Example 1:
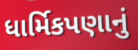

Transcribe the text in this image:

ધાર્મિકપણાનું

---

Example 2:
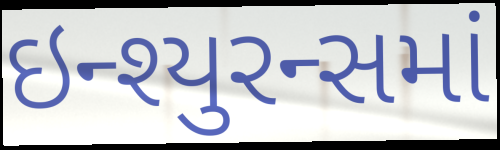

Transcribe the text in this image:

ઇન્શ્યુરન્સમાં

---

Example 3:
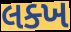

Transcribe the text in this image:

લક્ખ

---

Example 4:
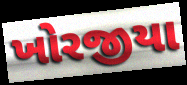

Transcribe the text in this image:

ખોરજીયા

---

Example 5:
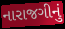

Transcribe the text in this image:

નારાજગીનું